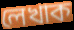
লেখাক